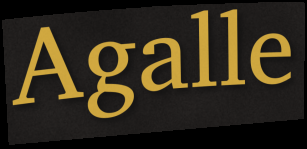
Agalle